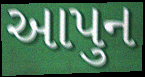
આપુન